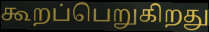
கூறப்பெறுகிறது